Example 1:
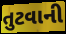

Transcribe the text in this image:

તુટવાની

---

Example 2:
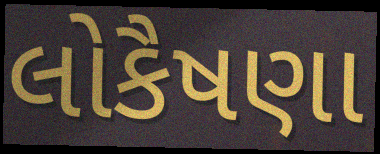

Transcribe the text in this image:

લોકૈષણા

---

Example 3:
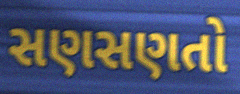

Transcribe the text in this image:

સણસણતો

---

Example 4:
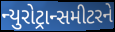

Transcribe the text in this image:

ન્યુરોટ્રાન્સમીટરને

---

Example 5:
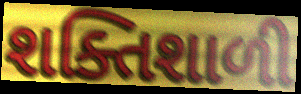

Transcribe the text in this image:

શક્તિશાળી